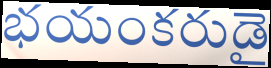
భయంకరుడై